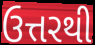
ઉત્તરથી